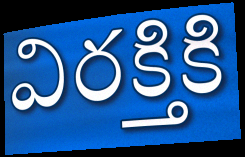
విరక్తికి